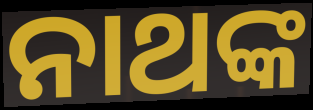
ନାଥଙ୍କ